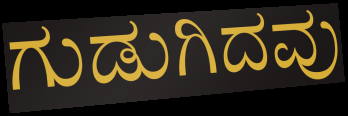
ಗುಡುಗಿದವು